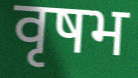
वृषभ